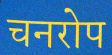
चनरोप